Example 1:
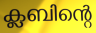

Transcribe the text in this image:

ക്ലബിന്റെ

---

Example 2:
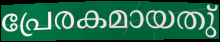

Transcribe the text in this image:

പ്രേരകമായതു്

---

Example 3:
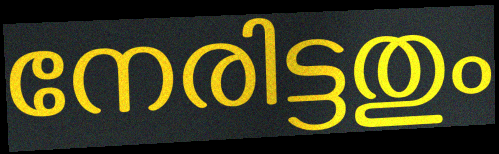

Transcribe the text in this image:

നേരിട്ടതും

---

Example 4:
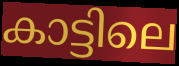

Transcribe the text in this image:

കാട്ടിലെ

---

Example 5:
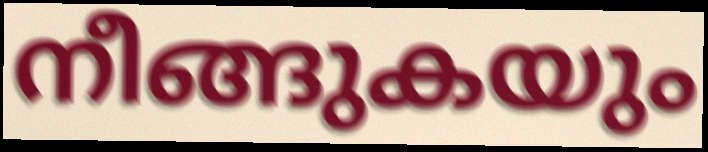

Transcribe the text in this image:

നീങ്ങുകയും